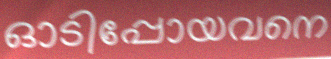
ഓടിപ്പോയവനെ